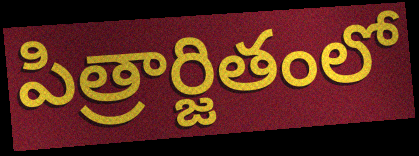
పిత్రార్జితంలో